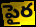
పైర